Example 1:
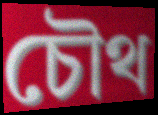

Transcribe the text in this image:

চৌথ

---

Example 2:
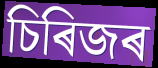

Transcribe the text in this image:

চিৰিজৰ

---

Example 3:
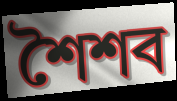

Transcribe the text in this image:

শৈশব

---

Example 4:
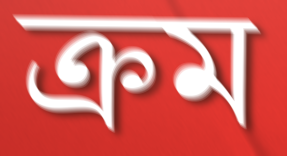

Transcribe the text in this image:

ক্ৰম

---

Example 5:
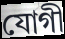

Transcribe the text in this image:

যোগী